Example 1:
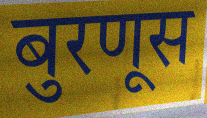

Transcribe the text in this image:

बुरणूस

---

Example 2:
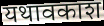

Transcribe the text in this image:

यथावकाश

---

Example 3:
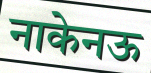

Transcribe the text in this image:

नाकेनऊ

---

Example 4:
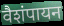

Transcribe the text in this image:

वैशंपायन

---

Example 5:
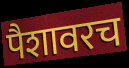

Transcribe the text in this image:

पैशावरच